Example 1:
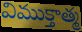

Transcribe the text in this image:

విముక్తాత్మ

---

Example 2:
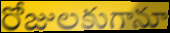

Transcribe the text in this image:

రోజులకుగానూ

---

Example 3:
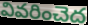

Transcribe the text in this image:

వివరించెద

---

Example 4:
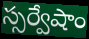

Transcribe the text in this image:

స్సర్వేషాం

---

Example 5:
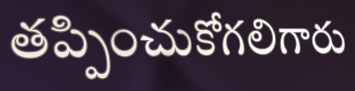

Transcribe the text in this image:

తప్పించుకోగలిగారు